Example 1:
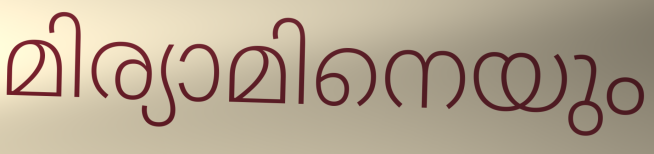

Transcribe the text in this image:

മിര്യാമിനെയും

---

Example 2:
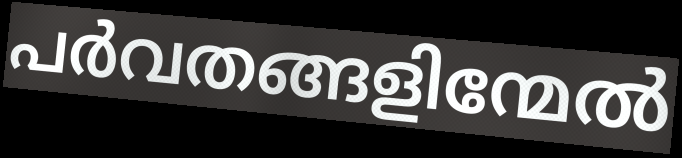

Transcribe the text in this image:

പർവതങ്ങളിന്മേൽ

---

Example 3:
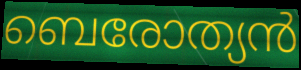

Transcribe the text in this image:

ബെരോത്യൻ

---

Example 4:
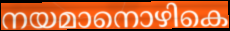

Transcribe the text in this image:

നയമാനൊഴികെ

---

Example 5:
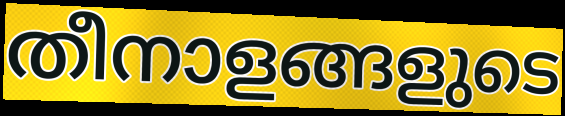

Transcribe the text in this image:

തീനാളങ്ങളുടെ